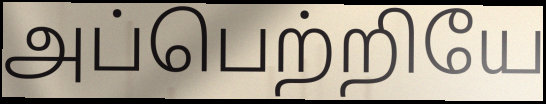
அப்பெற்றியே